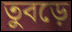
তুবড়ে